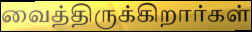
வைத்திருக்கிறார்கள்